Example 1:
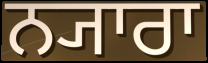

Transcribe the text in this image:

ਨ੍ਯਾਰਾ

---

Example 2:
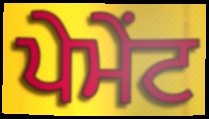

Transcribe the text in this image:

ਪੇਮੇਂਟ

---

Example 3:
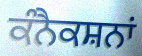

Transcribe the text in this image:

ਕੰਨੈਕਸ਼ਨਾਂ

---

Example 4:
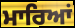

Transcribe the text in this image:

ਮਾਰਿਆਂ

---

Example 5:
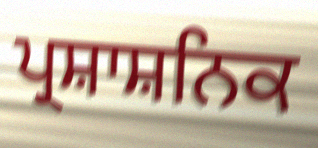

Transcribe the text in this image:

ਪ੍ਰਸ਼ਾਸ਼ਨਿਕ